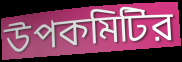
উপকমিটির